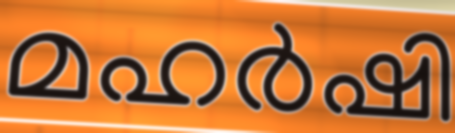
മഹർഷി